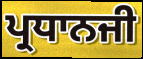
ਪ੍ਰਧਾਨਜੀ